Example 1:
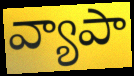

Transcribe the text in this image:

వ్యాపా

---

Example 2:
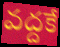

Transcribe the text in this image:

వద్దకే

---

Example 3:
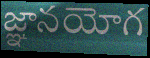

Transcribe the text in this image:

జ్ఞానయోగ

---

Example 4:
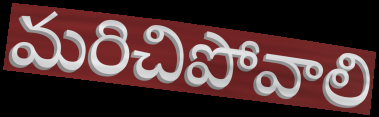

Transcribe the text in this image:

మరిచిపోవాలి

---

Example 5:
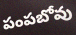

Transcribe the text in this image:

పంపబోవు